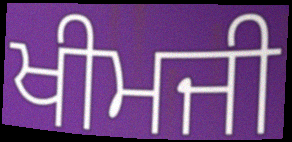
ਖੀਮਜੀ